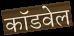
कॉडवेल